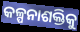
କଳ୍ପନାଶକ୍ତିକୁ